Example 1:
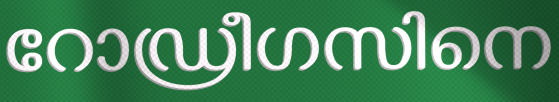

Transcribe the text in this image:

റോഡ്രീഗസിനെ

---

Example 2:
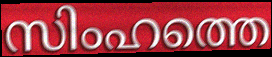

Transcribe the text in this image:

സിംഹത്തെ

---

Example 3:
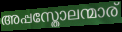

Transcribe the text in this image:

അപ്പസ്തോലന്മാര്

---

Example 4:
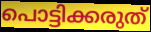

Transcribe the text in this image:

പൊട്ടിക്കരുത്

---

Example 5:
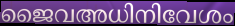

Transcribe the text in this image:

ജൈവഅധിനിവേശം